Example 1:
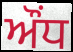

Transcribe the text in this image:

ਔਂਧ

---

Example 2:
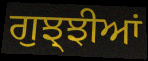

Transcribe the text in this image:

ਗੁਝ੍ਝੀਆਂ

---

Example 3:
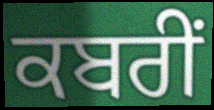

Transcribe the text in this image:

ਕਬਰੀਂ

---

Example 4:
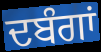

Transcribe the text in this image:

ਦਬੰਗਾਂ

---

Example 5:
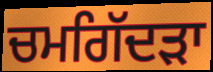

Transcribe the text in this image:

ਚਮਗਿੱਦੜਾ